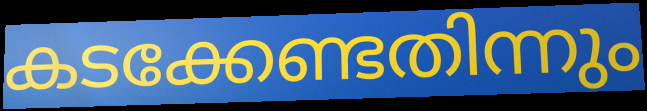
കടക്കേണ്ടതിന്നും